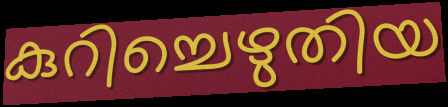
കുറിച്ചെഴുതിയ